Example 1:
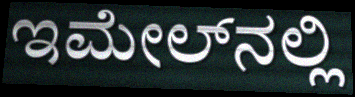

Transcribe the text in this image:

ಇಮೇಲ್‌ನಲ್ಲಿ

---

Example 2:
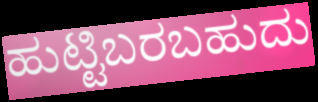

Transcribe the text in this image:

ಹುಟ್ಟಿಬರಬಹುದು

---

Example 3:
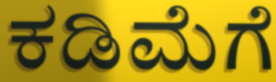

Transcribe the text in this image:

ಕಡಿಮೆಗೆ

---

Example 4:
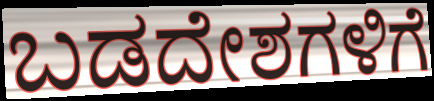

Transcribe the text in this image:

ಬಡದೇಶಗಳಿಗೆ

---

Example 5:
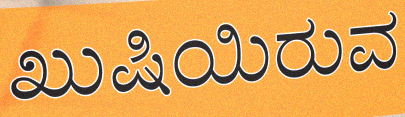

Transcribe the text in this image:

ಖುಷಿಯಿರುವ